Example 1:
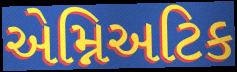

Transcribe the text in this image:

એમ્નિઅટિક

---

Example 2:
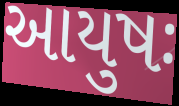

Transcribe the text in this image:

આયુષઃ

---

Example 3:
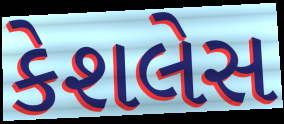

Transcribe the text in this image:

કેશલેસ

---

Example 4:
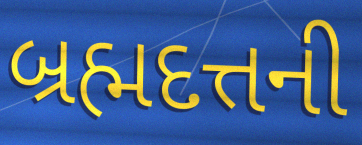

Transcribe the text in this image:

બ્રહ્મદત્તની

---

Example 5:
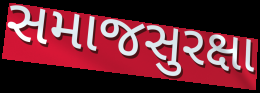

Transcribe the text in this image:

સમાજસુરક્ષા